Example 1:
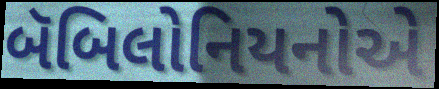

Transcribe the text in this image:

બૅબિલોનિયનોએ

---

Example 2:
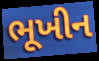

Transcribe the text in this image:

ભૂખીન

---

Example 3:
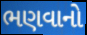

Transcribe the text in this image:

ભણવાનો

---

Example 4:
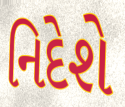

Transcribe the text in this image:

નિદેશે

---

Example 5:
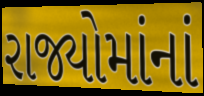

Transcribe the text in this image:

રાજ્યોમાંનાં